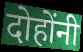
दोहोंनी